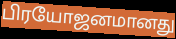
பிரயோஜனமானது